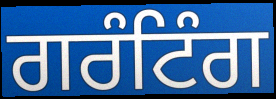
ਗਰੰਟਿੰਗ